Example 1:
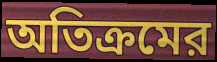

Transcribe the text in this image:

অতিক্রমের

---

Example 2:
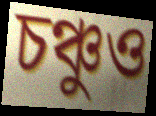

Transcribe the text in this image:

চঞ্চুও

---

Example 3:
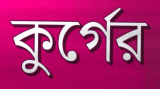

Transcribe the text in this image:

কুর্গের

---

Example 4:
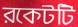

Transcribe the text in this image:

রকেটটি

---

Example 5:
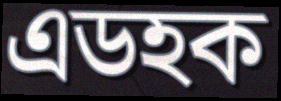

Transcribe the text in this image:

এডহক